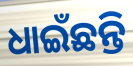
ଧାଇଁଛନ୍ତି